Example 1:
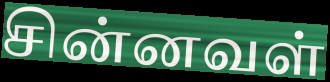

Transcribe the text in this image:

சின்னவள்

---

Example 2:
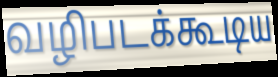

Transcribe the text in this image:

வழிபடக்கூடிய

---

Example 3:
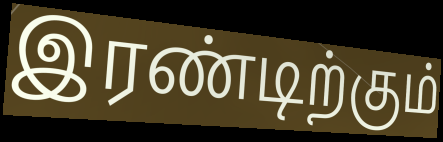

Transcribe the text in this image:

இரண்டிற்கும்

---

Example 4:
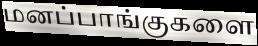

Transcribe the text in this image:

மனப்பாங்குகளை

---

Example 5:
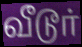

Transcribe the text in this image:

வீடூர்